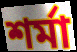
শর্মা